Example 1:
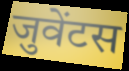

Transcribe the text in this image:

जुवेंटस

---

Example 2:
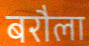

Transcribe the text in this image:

बरौला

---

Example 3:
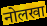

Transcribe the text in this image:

नोलखा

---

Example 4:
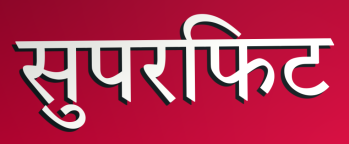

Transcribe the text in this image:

सुपरफिट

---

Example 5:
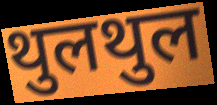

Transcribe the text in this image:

थुलथुल